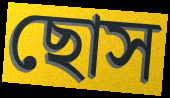
ছোস